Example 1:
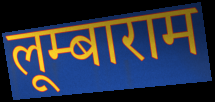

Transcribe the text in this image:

लूम्बाराम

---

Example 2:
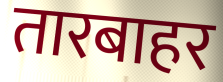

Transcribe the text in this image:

तारबाहर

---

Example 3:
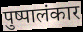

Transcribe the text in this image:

पुष्पालंकार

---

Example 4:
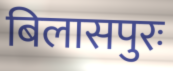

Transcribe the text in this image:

बिलासपुरः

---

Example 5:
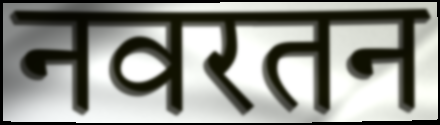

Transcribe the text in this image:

नवरतन